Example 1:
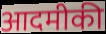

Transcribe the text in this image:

आदमीकी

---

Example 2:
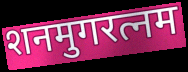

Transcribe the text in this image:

शनमुगरत्नम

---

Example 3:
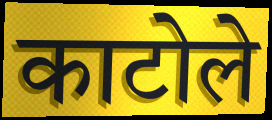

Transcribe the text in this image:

काटोले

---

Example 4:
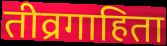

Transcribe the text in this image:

तीव्रगाहिता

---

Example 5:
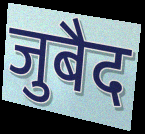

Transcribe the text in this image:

जुबैद